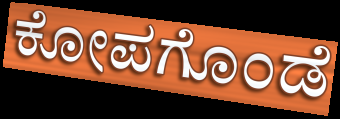
ಕೋಪಗೊಂಡೆ